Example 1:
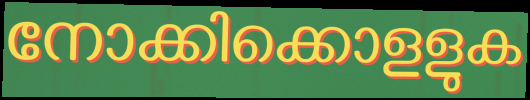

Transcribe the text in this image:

നോക്കിക്കൊളളുക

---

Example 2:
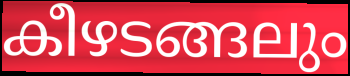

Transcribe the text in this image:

കീഴടങ്ങലും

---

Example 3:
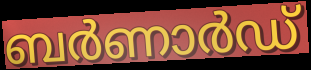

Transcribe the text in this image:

ബർണാർഡ്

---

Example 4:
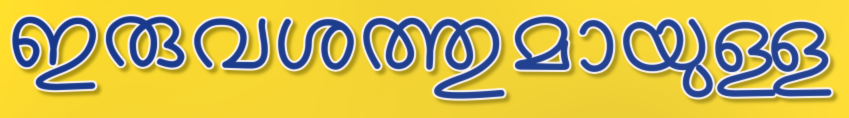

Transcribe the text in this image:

ഇരുവശത്തുമായുള്ള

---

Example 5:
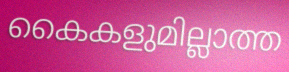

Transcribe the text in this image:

കൈകളുമില്ലാത്ത